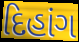
દિહાંગ